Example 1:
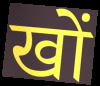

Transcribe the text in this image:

खों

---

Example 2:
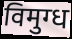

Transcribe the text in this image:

विमुग्ध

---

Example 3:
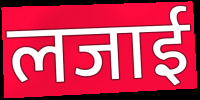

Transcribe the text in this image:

लजाई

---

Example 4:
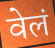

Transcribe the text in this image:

वेलं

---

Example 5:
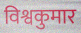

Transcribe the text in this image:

विश्वकुमार